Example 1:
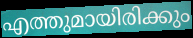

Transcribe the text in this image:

എത്തുമായിരിക്കും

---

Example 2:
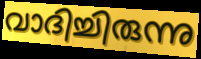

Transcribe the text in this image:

വാദിച്ചിരുന്നു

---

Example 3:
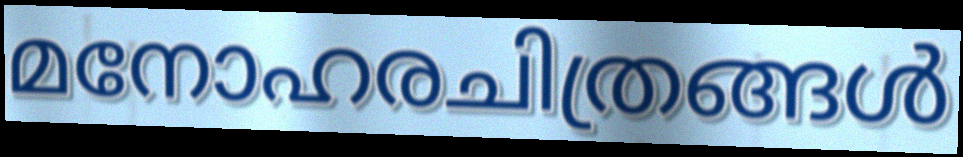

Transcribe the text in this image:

മനോഹരചിത്രങ്ങൾ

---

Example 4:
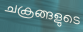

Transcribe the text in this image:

ചക്രങ്ങളുടെ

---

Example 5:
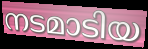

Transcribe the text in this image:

നടമാടിയ